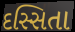
દસ્સિતા